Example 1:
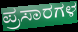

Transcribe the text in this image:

ಪ್ರಸಾರಗಳ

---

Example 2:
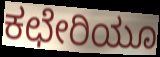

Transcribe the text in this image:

ಕಛೇರಿಯೂ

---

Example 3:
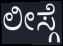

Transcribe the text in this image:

ಲೀಸ್ಗೆ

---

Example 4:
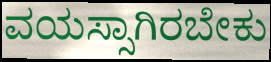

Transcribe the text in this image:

ವಯಸ್ಸಾಗಿರಬೇಕು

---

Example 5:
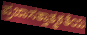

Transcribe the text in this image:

ಪ್ರಜಾಸತ್ತಾತ್ಮಕತೆಯ